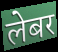
लेबर